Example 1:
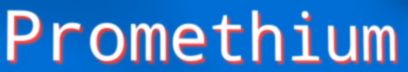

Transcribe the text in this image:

Promethium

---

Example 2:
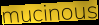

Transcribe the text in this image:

mucinous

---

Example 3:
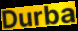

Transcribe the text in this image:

Durba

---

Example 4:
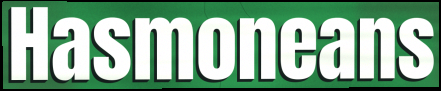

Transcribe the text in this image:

Hasmoneans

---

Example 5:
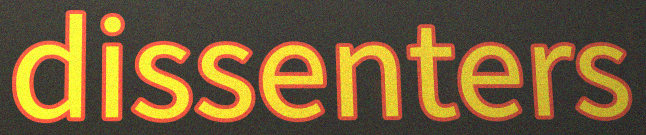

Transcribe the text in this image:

dissenters